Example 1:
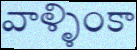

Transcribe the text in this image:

వాళ్ళింకా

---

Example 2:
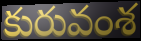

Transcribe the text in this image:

కురువంశ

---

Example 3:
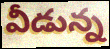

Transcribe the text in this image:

వీడున్న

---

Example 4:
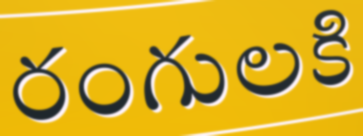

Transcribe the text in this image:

రంగులకి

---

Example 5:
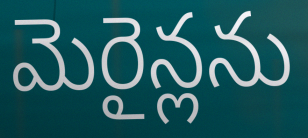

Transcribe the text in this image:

మెరైన్లను